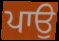
ਪਾਉ